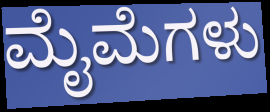
ಮೈಮೆಗಳು